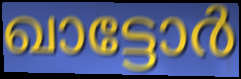
ഖാട്ടോർ